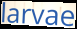
larvae